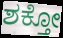
ಶಕ್ತೋ